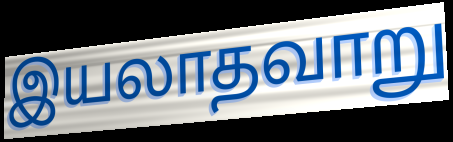
இயலாதவாறு